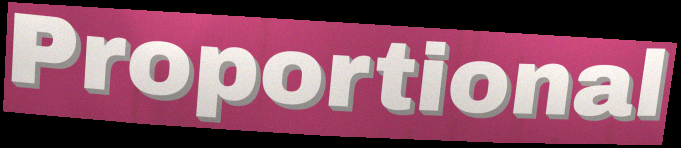
Proportional